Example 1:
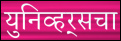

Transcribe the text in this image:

युनिव्हर्सचा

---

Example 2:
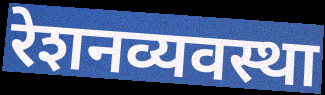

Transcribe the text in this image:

रेशनव्यवस्था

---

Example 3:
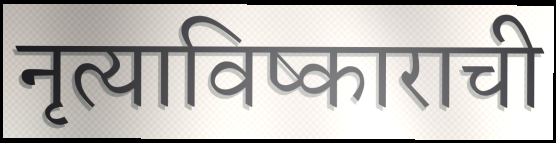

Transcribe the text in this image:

नृत्याविष्काराची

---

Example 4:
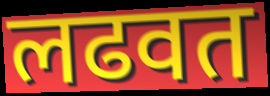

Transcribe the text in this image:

लढवत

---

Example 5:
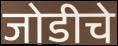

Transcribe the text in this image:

जोडीचे